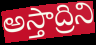
అస్తాద్రిని